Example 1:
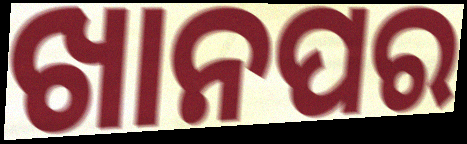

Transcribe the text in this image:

ଖାନପର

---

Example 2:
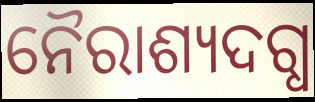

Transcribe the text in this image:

ନୈରାଶ୍ୟଦଗ୍ଧ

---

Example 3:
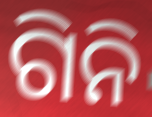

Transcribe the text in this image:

ଗିନି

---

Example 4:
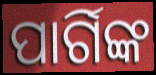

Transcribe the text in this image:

ପାର୍ଗିଙ୍କ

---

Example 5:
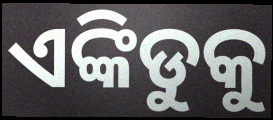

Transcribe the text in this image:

ଏଙ୍କିଡୁକୁ